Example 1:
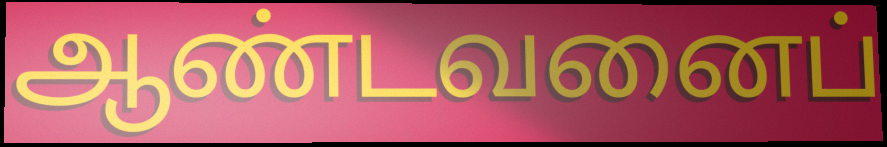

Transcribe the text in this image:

ஆண்டவனைப்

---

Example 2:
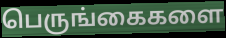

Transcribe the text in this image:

பெருங்கைகளை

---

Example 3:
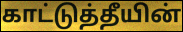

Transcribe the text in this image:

காட்டுத்தீயின்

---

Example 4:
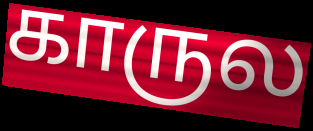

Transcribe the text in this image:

காருல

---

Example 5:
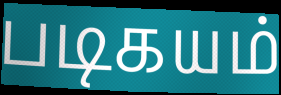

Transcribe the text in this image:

படிகயம்